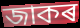
জাকৰ